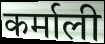
कर्माली